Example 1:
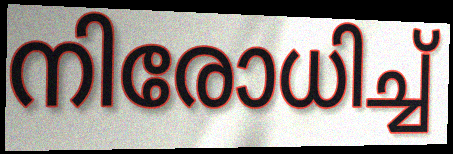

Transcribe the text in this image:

നിരോധിച്ച്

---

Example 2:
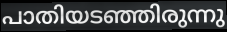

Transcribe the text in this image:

പാതിയടഞ്ഞിരുന്നു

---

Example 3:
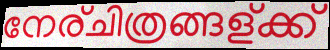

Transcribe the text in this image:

നേര്ചിത്രങ്ങള്ക്ക്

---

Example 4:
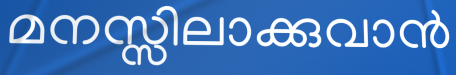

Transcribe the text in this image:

മനസ്സിലാക്കുവാൻ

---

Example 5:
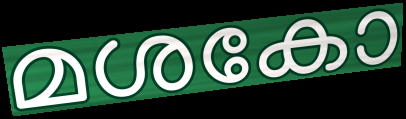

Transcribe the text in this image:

മശകോ